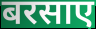
बरसाए